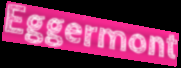
Eggermont